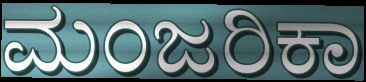
ಮಂಜರಿಕಾ